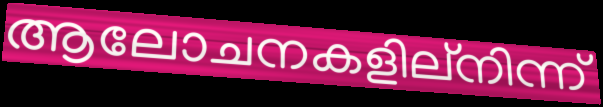
ആലോചനകളില്നിന്ന്